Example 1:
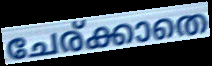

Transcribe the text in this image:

ചേര്ക്കാതെ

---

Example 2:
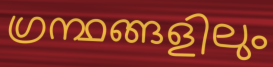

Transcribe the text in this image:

ഗ്രന്ഥങ്ങളിലും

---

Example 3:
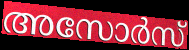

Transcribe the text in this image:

അസോർസ്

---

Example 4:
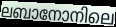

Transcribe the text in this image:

ലബാനോനിലെ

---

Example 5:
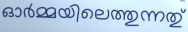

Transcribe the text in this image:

ഓർമ്മയിലെത്തുന്നതു്